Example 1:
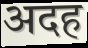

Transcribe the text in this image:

अदह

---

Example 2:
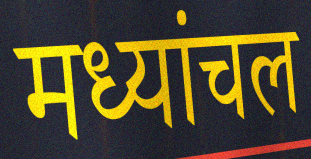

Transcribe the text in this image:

मध्यांचल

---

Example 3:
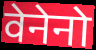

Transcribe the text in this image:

वेनेनो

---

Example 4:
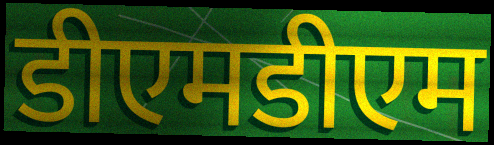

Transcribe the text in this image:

डीएमडीएम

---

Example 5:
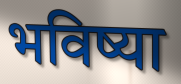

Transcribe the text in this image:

भविष्या